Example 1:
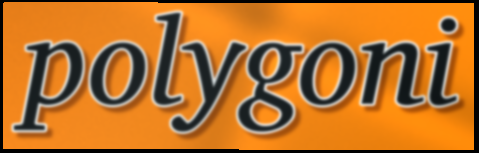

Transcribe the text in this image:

polygoni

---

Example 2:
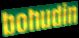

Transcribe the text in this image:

bohudin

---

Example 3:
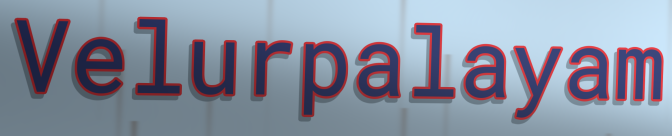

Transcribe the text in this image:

Velurpalayam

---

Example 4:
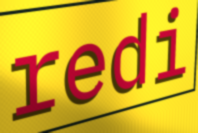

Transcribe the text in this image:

redi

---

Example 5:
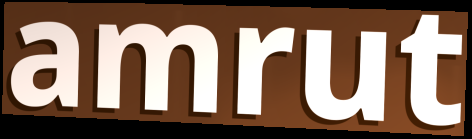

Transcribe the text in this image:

amrut